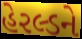
હેરલ્ડને